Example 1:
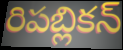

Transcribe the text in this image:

రిపబ్లికన్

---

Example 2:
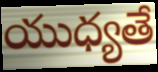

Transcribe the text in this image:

యుధ్యతే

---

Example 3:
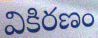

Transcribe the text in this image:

వికిరణం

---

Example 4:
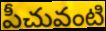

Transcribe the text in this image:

పీచువంటి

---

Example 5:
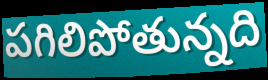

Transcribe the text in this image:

పగిలిపోతున్నది